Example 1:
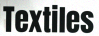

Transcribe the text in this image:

Textiles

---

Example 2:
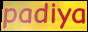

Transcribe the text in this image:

padiya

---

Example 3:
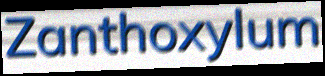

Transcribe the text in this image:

Zanthoxylum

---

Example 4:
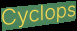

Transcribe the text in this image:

Cyclops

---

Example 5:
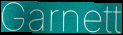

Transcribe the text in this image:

Garnett